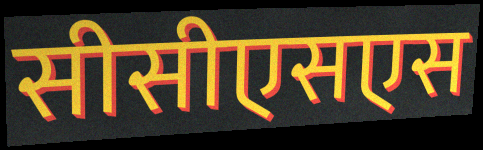
सीसीएसएस